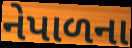
નેપાળના